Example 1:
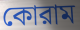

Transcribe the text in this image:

কোরাম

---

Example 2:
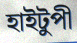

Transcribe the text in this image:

হাইটুপী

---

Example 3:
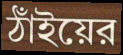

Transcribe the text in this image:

ঠাঁইয়ের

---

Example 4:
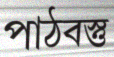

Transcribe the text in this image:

পাঠবস্তু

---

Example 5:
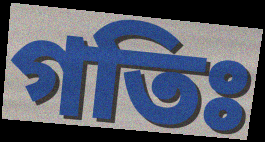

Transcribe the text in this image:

গতিঃ